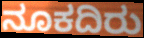
ನೂಕದಿರು